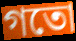
গতো